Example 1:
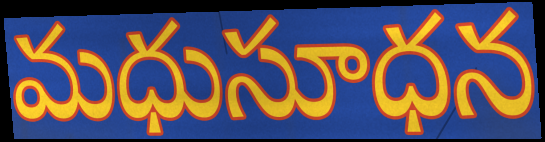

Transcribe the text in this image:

మధుసూధన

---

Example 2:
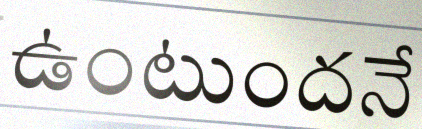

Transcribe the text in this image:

ఉంటుందనే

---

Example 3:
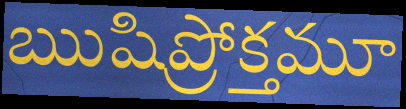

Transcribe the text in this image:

ఋషిప్రోక్తమూ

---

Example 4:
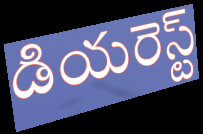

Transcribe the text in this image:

డియరెస్ట్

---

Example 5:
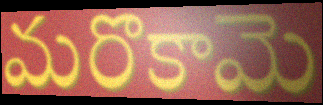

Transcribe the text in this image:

మరొకామె